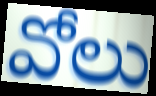
వోలు